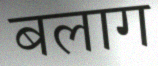
बलाग